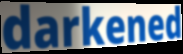
darkened